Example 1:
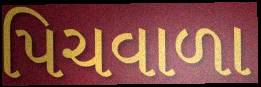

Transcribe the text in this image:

પિચવાળા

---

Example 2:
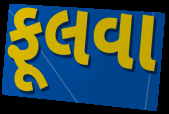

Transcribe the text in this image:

ફૂલવા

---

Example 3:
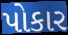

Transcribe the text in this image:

પોકાર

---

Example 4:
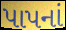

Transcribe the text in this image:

પાપનાં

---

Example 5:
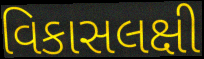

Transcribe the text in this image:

વિકાસલક્ષી